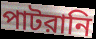
পাটরানি